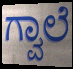
ಗ್ವಾಲೆ